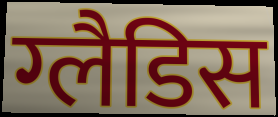
ग्लैडिस